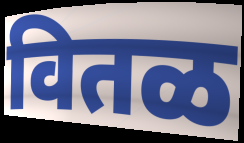
वितळ